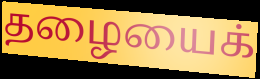
தழையைக்